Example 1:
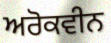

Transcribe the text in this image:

ਅਰੋਕਵੀਨ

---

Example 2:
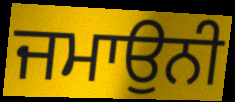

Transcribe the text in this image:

ਜਮਾਉਨੀ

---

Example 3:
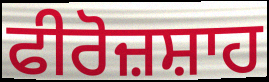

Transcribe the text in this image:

ਫੀਰੋਜ਼ਸ਼ਾਹ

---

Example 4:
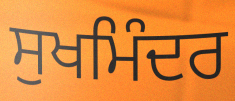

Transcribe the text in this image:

ਸੁਖਮਿੰਦਰ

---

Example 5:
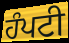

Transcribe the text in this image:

ਹੰਪਟੀ